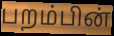
பறம்பின்